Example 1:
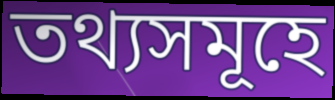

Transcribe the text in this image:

তথ্যসমূহে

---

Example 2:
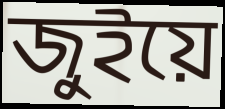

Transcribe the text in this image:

জুইয়ে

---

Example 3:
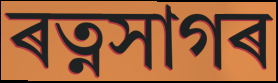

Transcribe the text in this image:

ৰত্নসাগৰ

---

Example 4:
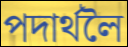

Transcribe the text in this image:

পদাৰ্থলৈ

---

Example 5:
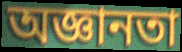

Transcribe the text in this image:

অজ্ঞানতা